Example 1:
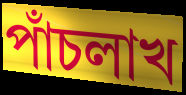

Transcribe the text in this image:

পাঁচলাখ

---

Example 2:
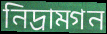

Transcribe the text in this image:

নিদ্রামগন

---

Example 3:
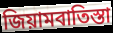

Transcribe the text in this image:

জিয়ামবাতিস্তা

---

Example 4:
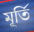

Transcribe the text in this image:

মূর্তি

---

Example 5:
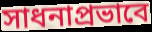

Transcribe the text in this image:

সাধনাপ্রভাবে